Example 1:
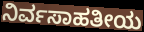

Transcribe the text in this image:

ನಿರ್ವಸಾಹತೀಯ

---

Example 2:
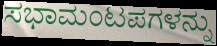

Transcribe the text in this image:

ಸಭಾಮಂಟಪಗಳನ್ನು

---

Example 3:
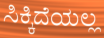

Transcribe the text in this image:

ಸಿಕ್ಕಿದೆಯಲ್ಲ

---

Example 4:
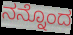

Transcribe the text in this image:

ನನ್ನೊಂದ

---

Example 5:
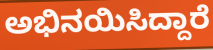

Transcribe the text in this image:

ಅಭಿನಯಿಸಿದ್ದಾರೆ